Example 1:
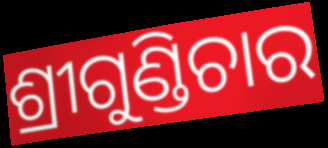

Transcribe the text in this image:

ଶ୍ରୀଗୁଣ୍ଡିଚାର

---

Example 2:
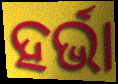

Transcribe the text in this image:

ହର୍ଭା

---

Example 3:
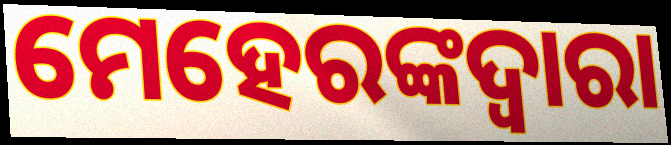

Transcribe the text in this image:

ମେହେରଙ୍କଦ୍ଵାରା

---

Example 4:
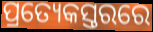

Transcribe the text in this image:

ପ୍ରତ୍ୟେକସ୍ତରରେ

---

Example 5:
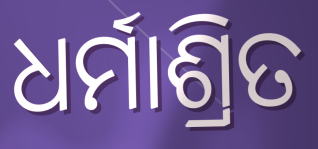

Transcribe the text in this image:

ଧର୍ମାଶ୍ରିତ